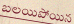
బలయిపోయిన